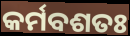
କର୍ମବଶତଃ